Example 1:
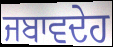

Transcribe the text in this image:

ਜਬਾਵਦੇਹ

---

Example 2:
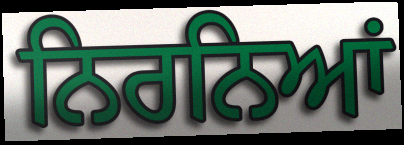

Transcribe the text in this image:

ਨਿਰਨਿਆਂ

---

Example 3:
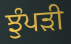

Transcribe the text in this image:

ਝੁੰਪੜੀ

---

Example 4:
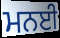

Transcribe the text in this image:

ਮਨਈ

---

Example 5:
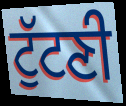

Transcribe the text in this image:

ਟੁੱਟਣੀ